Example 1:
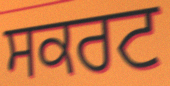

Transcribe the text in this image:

ਸਕਰਟ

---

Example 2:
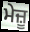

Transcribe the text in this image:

ਮੇਜ਼ੂ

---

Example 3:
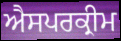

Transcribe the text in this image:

ਐਸਪਰਕ੍ਰੀਮ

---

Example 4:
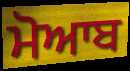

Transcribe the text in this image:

ਮੋਆਬ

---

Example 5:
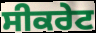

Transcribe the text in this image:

ਸੀਕਰੇਟ